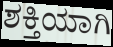
ಶಕ್ತಿಯಾಗಿ